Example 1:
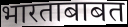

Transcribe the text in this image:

भारताबाबत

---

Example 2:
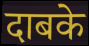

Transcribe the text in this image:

दाबके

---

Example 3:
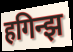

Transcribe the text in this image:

हगिन्झ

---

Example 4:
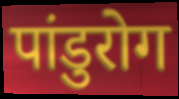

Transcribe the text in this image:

पांडुरोग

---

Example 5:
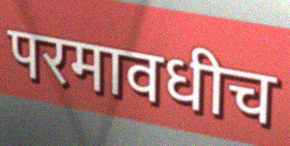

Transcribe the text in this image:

परमावधीच